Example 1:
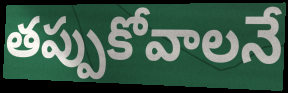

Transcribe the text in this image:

తప్పుకోవాలనే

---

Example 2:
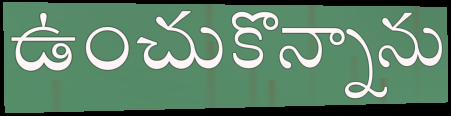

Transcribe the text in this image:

ఉంచుకొన్నాను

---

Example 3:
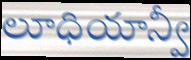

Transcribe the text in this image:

లూధియాన్వీ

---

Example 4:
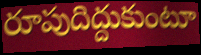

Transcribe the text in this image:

రూపుదిద్దుకుంటూ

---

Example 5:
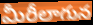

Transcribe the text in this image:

మీరీలాగున